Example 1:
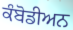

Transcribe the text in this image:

ਕੰਬੋਡੀਅਨ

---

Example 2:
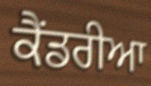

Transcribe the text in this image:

ਕੈਂਡਰੀਆ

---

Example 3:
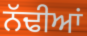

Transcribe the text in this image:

ਨੱਢੀਆਂ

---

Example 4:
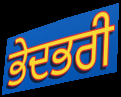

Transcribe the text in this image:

ਭੇਦਭਰੀ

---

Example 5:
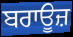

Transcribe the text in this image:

ਬਰਾਊਜ਼